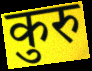
कुरु